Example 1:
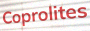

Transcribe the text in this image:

Coprolites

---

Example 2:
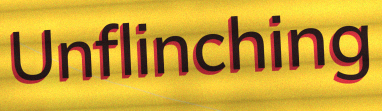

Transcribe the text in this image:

Unflinching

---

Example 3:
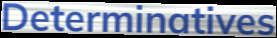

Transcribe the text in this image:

Determinatives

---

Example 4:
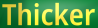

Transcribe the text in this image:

Thicker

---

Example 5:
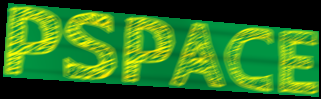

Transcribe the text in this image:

PSPACE